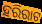
ହରିରାଟ